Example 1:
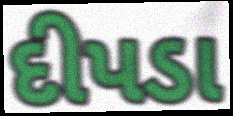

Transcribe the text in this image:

દીપડા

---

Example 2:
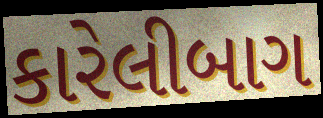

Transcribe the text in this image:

કારેલીબાગ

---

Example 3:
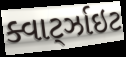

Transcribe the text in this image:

ક્વાર્ટ્ઝાઇટ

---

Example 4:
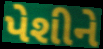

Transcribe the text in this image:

પેશીને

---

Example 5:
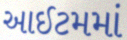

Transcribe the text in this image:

આઈટમમાં